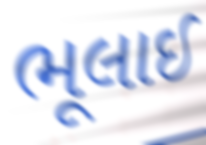
ભૂલાઈ